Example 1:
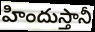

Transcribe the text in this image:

హిందుస్తానీ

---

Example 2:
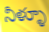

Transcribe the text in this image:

నీళ్ళూ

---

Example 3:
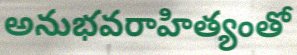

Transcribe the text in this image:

అనుభవరాహిత్యంతో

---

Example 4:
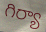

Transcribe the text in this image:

గిర్యా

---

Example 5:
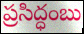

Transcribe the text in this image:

ప్రసిద్ధంబు